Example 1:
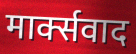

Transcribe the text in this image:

मार्क्सवाद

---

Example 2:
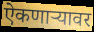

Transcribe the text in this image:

ऐकणार्‍यावर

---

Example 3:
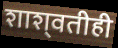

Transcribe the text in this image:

शाश्वतीही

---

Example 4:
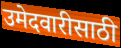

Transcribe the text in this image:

उमेदवारीसाठी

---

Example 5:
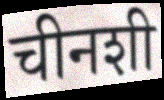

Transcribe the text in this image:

चीनशी